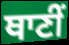
ਥਾਣੀਂ